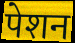
पेशन